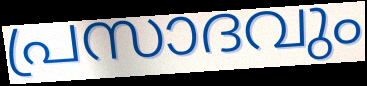
പ്രസാദവും